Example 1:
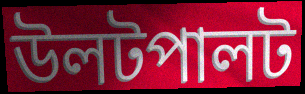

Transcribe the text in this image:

উলটপালট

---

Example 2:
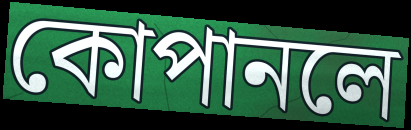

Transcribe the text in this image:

কোপানলে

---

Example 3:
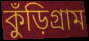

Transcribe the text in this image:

কুঁড়িগ্রাম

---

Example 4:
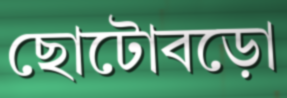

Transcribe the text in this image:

ছোটোবড়ো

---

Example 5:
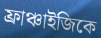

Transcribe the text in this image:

ফ্রাঞ্চাইজিকে